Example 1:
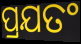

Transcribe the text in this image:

ପ୍ରଯତଂ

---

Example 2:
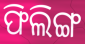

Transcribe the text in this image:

ଫିଲିଙ୍ଗ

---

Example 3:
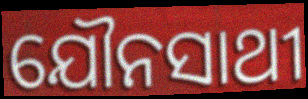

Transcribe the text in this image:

ଯୌନସାଥୀ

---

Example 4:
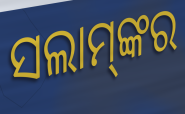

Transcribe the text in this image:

ସଲାମ୍‌ଙ୍କର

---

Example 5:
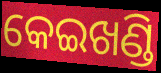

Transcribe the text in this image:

କେଇଖଣ୍ଡି